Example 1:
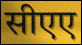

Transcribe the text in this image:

सीएए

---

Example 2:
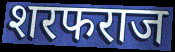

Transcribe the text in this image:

शरफराज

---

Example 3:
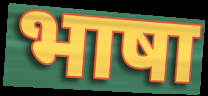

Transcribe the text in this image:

भाषा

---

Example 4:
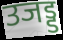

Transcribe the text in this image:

उजड्ड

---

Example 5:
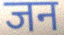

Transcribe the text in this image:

जन